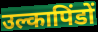
उल्कापिंडों